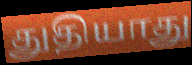
துதியாது